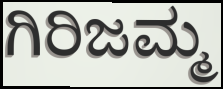
ಗಿರಿಜಮ್ಮ